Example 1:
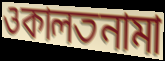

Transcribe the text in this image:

ওকালতনামা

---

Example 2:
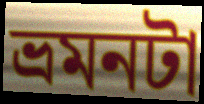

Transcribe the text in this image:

ভ্রমনটা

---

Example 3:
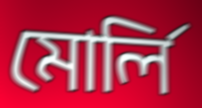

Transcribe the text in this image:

মোর্লি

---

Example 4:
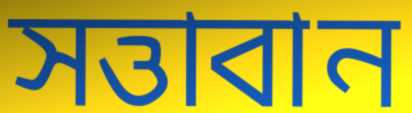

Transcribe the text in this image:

সত্তাবান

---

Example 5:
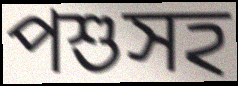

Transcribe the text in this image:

পশুসহ